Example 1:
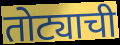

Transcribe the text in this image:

तोट्याची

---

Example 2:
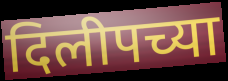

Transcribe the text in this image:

दिलीपच्या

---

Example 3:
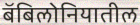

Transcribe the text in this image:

बॅबिलोनियातील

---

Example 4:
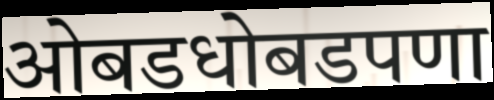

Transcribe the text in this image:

ओबडधोबडपणा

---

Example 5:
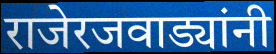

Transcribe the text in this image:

राजेरजवाड्यांनी